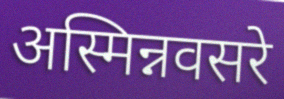
अस्मिन्नवसरे